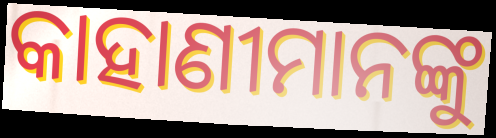
କାହାଣୀମାନଙ୍କୁ